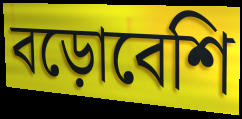
বড়োবেশি